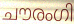
ചൗരംഗി